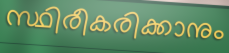
സ്ഥിരീകരിക്കാനും